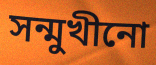
সন্মুখীনো